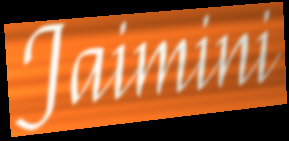
Jaimini